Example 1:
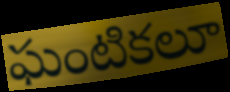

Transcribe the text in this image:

ఘంటికలూ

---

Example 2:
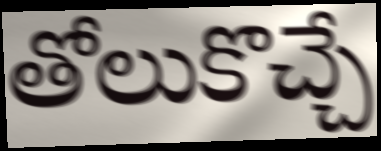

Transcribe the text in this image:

తోలుకొచ్చే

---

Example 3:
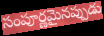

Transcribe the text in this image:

సంపూర్ణమైనప్పుడు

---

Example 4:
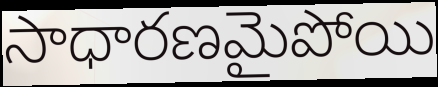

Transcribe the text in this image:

సాధారణమైపోయి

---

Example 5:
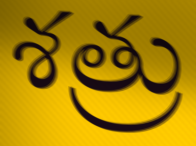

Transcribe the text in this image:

శత్రు